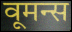
वूमन्स